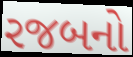
રજબનો